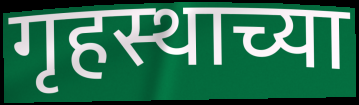
गृहस्थाच्या